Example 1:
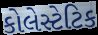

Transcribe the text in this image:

કોલેસ્ટેટિક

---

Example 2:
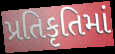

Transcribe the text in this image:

પ્રતિકૃતિમાં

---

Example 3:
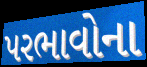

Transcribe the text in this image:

પરભાવોના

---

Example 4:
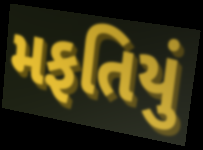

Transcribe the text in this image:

મફતિયું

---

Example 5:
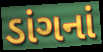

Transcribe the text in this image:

ડાંગનાં